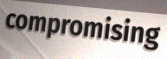
compromising